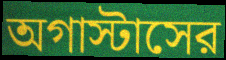
অগাস্টাসের